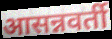
आसन्नवर्ती